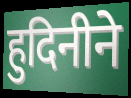
हुदिनीने